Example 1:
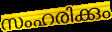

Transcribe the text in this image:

സംഹരിക്കും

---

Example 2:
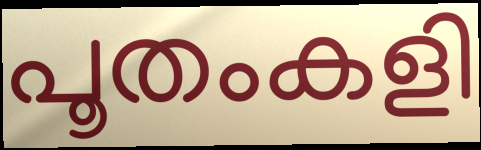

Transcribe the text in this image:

പൂതംകളി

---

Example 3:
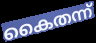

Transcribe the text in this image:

കൈതന്ന്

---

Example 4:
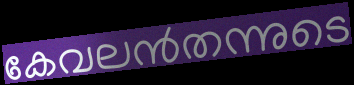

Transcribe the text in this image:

കേവലൻതന്നുടെ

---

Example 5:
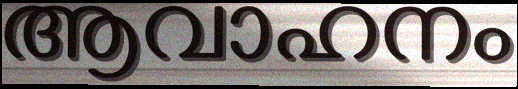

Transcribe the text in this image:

ആവാഹനം